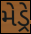
મેડ્રે